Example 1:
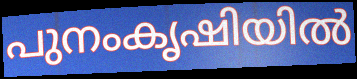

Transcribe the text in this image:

പുനംകൃഷിയിൽ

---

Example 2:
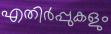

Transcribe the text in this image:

എതിർപ്പുകളും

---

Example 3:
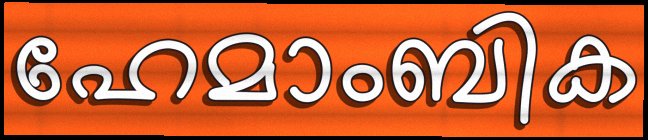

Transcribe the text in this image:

ഹേമാംബിക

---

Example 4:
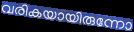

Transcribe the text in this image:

വരികയായിരുന്നോ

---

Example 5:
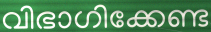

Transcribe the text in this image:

വിഭാഗിക്കേണ്ട